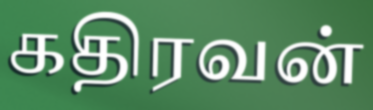
கதிரவன்